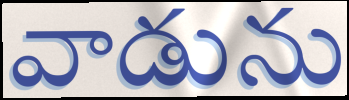
వాడును